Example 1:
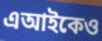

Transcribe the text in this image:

এআইকেও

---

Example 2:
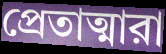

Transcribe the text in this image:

প্রেতাত্মারা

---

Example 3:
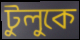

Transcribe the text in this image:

টুলুকে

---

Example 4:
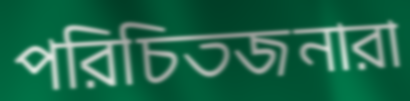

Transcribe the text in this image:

পরিচিতজনারা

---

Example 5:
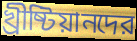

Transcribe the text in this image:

খ্রীষ্টিয়ানদের